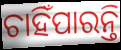
ଚାହିଁପାରନ୍ତି